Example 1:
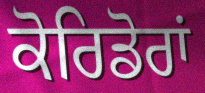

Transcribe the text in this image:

ਕੋਰਿਡੋਰਾਂ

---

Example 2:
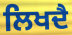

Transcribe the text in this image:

ਲਿਖਦੈ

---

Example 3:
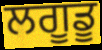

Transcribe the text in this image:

ਲਗੂਡੂ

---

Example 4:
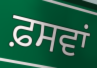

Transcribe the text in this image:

ਫ਼ਸਵਾਂ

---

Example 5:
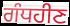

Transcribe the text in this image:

ਗੰਧਹੀਣ